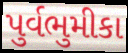
પુર્વભુમીકા